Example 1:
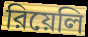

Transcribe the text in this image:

রিয়েলি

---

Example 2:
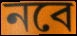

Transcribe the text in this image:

নবে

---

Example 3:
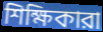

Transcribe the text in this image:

শিক্ষিকারা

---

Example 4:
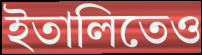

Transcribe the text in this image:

ইতালিতেও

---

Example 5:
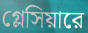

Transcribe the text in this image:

গ্লেসিয়ারে